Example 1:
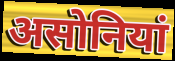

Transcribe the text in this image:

असोनियां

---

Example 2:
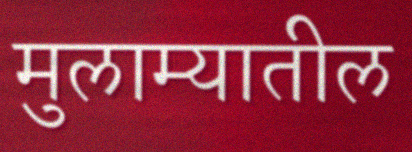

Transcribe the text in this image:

मुलाम्यातील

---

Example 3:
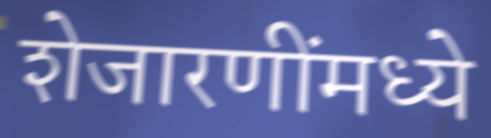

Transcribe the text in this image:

शेजारणींमध्ये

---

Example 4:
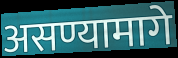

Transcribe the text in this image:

असण्यामागे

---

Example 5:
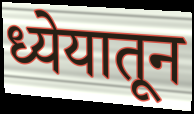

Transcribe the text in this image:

ध्येयातून